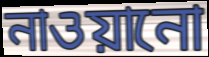
নাওয়ানো